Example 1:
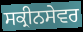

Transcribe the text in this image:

ਸਕ੍ਰੀਨਸੇਵਰ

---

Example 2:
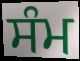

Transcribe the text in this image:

ਸੰਮ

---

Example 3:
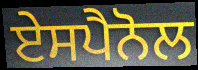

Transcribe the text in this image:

ਏਸਪੈਨੋਲ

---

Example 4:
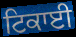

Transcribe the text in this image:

ਟਿਕਾਈ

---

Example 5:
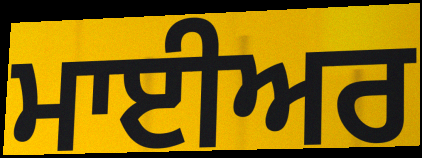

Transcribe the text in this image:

ਮਾਈਅਰ